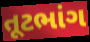
તૂટભાંગ